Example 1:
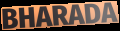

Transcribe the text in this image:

BHARADA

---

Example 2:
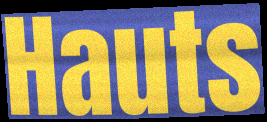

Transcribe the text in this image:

Hauts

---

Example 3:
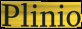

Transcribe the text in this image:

Plinio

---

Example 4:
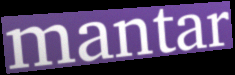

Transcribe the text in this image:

mantar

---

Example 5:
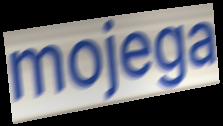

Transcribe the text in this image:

mojega